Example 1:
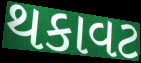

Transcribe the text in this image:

થકાવટ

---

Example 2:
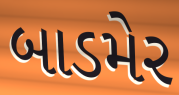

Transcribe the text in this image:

બાડમેર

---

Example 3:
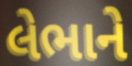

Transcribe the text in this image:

લેભાને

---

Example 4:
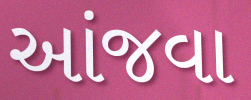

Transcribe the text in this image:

આંજવા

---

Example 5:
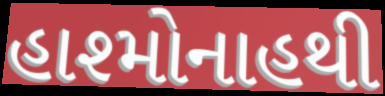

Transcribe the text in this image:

હાશ્મોનાહથી